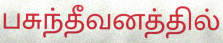
பசுந்தீவனத்தில்